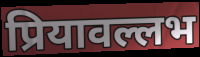
प्रियावल्लभ